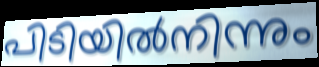
പിടിയിൽനിന്നും